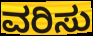
ವರಿಸು